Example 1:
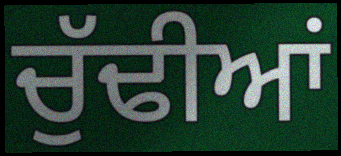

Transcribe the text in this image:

ਚੁੱਢੀਆਂ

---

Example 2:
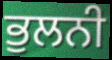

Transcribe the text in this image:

ਭੁਲਨੀ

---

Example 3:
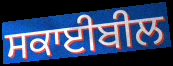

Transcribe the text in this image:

ਸਕਾਈਬੀਲ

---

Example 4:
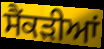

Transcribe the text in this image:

ਸੈਂਕੜੀਆਂ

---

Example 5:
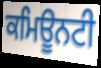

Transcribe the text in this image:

ਕਮਿਊਨਟੀ